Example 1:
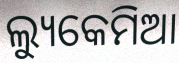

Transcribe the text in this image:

ଲ୍ୟୁକେମିଆ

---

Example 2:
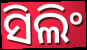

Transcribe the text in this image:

ସିଲିଂ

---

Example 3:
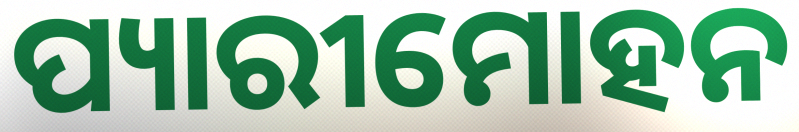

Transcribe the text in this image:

ପ୍ୟାରୀମୋହନ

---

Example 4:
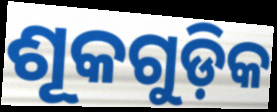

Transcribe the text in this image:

ଶୂକଗୁଡ଼ିକ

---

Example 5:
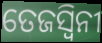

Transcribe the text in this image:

ତେଜସ୍ଵିନୀ